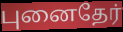
புனைதேர்